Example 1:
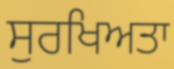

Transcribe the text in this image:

ਸੁਰਖਿਅਤਾ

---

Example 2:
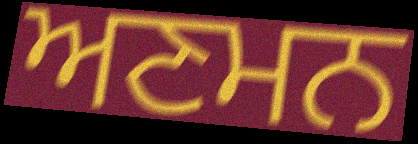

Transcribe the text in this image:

ਅਣਮਨ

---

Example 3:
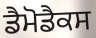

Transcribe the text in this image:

ਡੈਮੋਡੈਕਸ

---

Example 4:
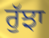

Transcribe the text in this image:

ਰੁੱਝਾ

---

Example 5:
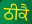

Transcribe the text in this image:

ਠੀਕੈ